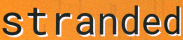
stranded